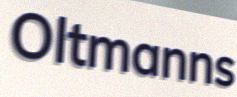
Oltmanns